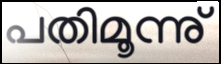
പതിമൂന്നു്